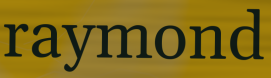
raymond